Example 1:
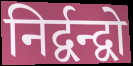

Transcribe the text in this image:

निर्द्वन्द्वो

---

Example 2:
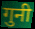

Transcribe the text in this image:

गुनी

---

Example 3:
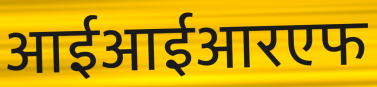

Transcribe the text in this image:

आईआईआरएफ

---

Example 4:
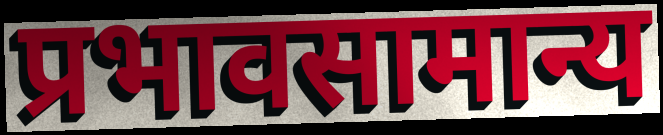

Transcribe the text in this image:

प्रभावसामान्य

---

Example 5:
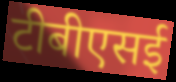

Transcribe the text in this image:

टीबीएसई